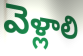
వెళ్లాలి